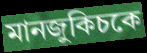
মানজুকিচকে